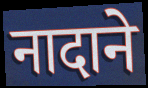
नादाने